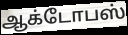
ஆக்டோபஸ்